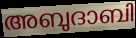
അബുദാബി